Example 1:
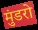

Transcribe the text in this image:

मुंडरो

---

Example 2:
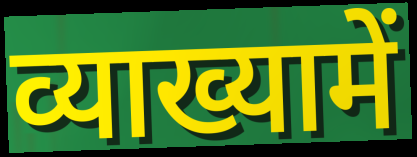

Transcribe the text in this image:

व्याख्यामें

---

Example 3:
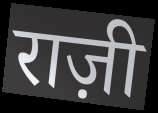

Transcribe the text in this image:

राज़ी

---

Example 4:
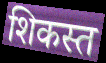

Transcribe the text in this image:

शिकस्त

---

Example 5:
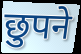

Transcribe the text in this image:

छुपने